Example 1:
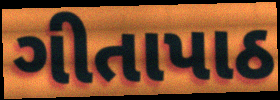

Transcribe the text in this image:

ગીતાપાઠ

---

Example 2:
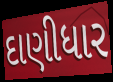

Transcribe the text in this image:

દાણીધાર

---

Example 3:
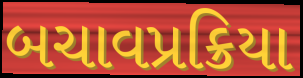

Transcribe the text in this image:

બચાવપ્રક્રિયા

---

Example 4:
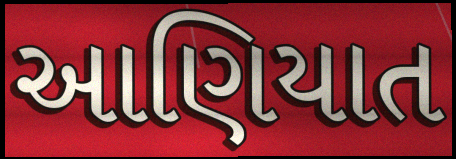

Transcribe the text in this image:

આણિયાત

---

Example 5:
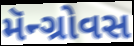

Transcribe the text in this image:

મૅન્ગ્રોવસ